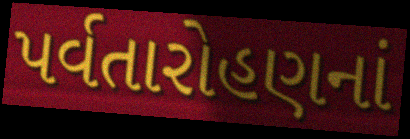
પર્વતારોહણનાં